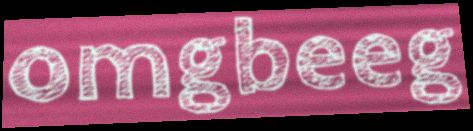
omgbeeg